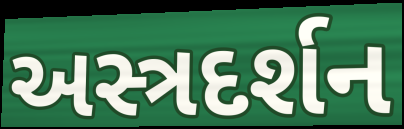
અસ્ત્રદર્શન